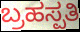
ಬ್ರಹಸ್ಪತಿ